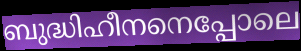
ബുദ്ധിഹീനനെപ്പോലെ